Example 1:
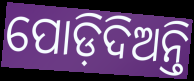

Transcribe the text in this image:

ପୋଡ଼ିଦିଅନ୍ତି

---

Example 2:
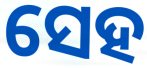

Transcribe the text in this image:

ସେହ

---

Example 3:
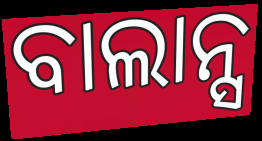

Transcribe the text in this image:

ବାଲାନ୍ସ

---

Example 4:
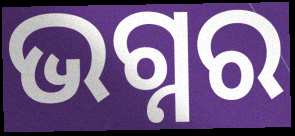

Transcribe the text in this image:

ଭଗ୍ନର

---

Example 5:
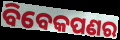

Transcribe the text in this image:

ବିବେକପଣର